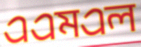
এএমএল